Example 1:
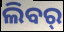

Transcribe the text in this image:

ଲିବର୍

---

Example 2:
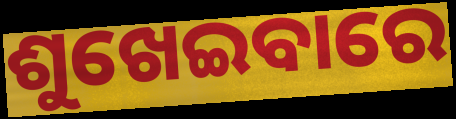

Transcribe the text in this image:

ଶୁଖେଇବାରେ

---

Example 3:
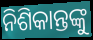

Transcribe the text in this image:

ନିଶିକାନ୍ତଙ୍କୁ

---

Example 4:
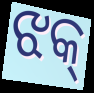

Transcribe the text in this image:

ଝକ୍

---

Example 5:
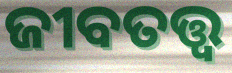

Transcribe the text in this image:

ଜୀବତତ୍ତ୍ୱ